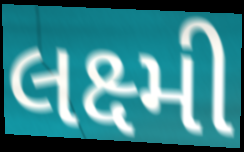
લક્ષ્મી